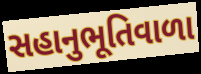
સહાનુભૂતિવાળા